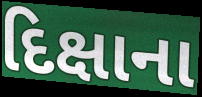
દિક્ષાના